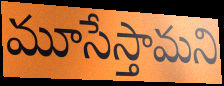
మూసేస్తామని